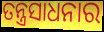
ତନ୍ତ୍ରସାଧନାର